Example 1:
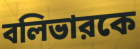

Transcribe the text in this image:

বলিভারকে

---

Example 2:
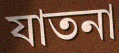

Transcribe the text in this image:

যাতনা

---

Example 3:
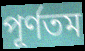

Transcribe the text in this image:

পূর্ণতম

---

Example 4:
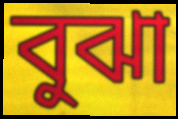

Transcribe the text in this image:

বুঝা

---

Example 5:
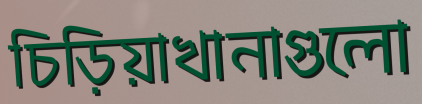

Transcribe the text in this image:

চিড়িয়াখানাগুলো